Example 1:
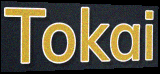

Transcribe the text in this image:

Tokai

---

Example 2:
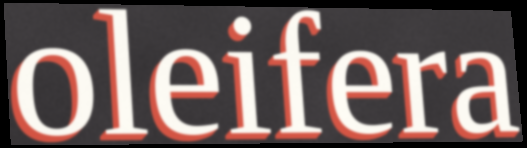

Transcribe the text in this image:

oleifera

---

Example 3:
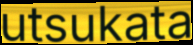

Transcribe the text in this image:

utsukata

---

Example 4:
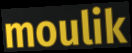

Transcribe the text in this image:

moulik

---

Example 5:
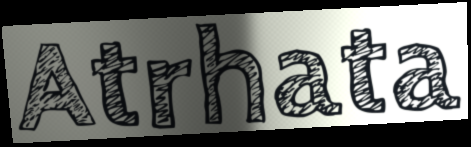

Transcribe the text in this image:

Atrhata